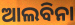
ଆଲବିନା